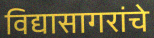
विद्यासागरांचे